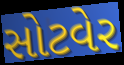
સોટવેર